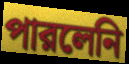
পারলেনি